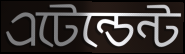
এটেন্ডেন্ট